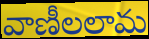
వాణీలలామ